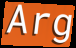
Arg